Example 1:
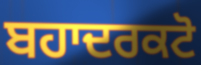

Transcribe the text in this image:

ਬਹਾਦਰਕਟੋ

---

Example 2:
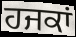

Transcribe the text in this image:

ਹਜਕਾਂ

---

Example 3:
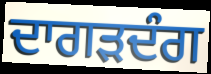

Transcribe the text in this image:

ਦਾਗੜਦੰਗ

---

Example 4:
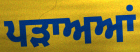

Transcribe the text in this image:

ਪੜਾਅਆਂ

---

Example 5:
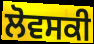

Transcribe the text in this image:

ਲੋਵਸਕੀ